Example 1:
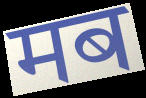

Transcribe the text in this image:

मब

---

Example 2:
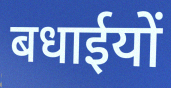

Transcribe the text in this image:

बधाईयों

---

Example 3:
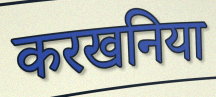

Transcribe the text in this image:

करखनिया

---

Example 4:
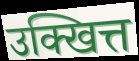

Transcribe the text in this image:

उक्खित्त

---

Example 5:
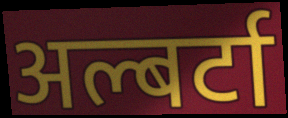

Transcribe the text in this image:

अल्बर्टा